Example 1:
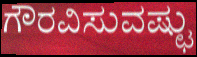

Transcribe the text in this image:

ಗೌರವಿಸುವಷ್ಟು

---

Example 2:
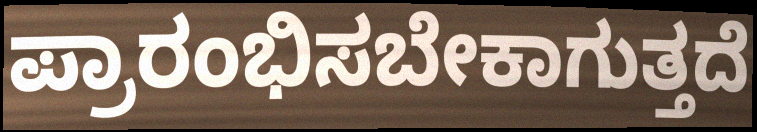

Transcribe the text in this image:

ಪ್ರಾರಂಭಿಸಬೇಕಾಗುತ್ತದೆ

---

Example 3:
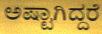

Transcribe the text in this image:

ಅಷ್ಟಾಗಿದ್ದರೆ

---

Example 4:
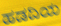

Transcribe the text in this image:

ಹಡದಿಯ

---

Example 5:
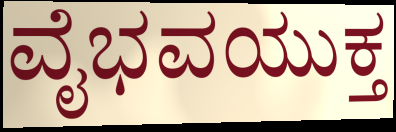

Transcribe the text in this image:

ವೈಭವಯುಕ್ತ